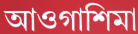
আওগাশিমা